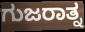
ಗುಜರಾತ್ನ